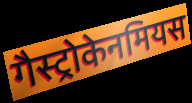
गैस्ट्रोकेनमियस